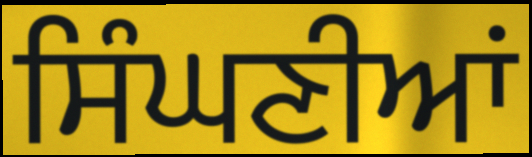
ਸਿੰਘਣੀਆਂ